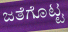
ಜತೆಗೊಟ್ಟ